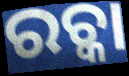
ରଚ୍କା